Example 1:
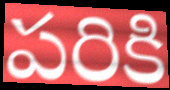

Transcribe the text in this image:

పరికి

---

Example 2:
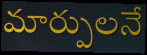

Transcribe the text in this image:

మార్పులనే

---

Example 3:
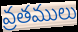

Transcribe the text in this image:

వ్రతములు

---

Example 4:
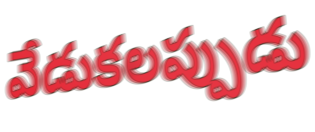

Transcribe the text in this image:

వేడుకలప్పుడు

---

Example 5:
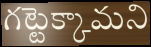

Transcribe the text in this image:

గట్టెక్కామని